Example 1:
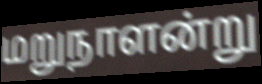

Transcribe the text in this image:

மறுநாளன்று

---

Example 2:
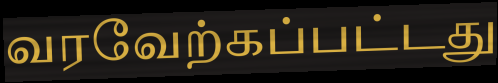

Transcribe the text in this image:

வரவேற்கப்பட்டது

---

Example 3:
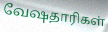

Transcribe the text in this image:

வேஷதாரிகள்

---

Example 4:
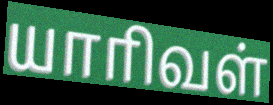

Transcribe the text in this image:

யாரிவள்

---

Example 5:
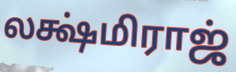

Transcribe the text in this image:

லக்ஷ்மிராஜ்